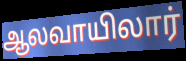
ஆலவாயிலார்